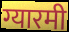
ग्यारमी